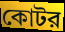
কোটর